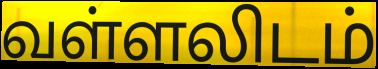
வள்ளலிடம்